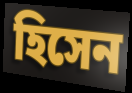
হিসেন